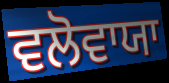
ਵਲੋਵਾਯਾ